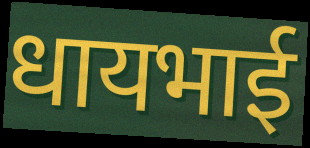
धायभाई